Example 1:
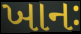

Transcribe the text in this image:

ખાનઃ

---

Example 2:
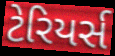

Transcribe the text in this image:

ટેરિયર્સ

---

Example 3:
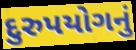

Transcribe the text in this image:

દુરુપયોગનું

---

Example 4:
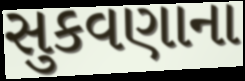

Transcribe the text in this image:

સુકવણાના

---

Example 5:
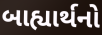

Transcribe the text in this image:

બાહ્યાર્થનો